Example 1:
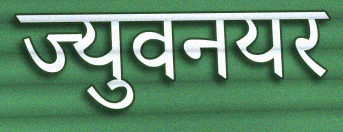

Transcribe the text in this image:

ज्युवनयर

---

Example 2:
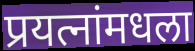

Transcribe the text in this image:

प्रयत्नांमधला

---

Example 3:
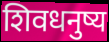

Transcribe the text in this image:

शिवधनुष्य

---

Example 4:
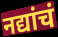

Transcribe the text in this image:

नद्यांचं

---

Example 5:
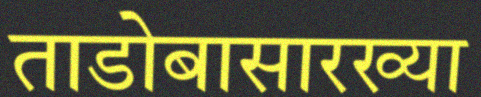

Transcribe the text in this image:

ताडोबासारख्या